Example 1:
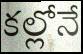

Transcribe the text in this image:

కల్లోనే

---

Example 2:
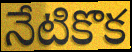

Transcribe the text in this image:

నేటికొక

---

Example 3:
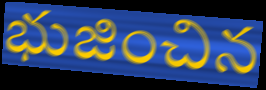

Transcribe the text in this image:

భుజించిన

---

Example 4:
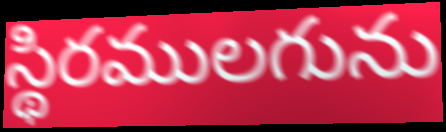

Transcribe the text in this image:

స్థిరములగును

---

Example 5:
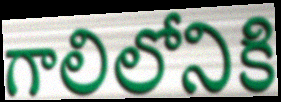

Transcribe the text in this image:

గాలిలోనికి